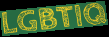
LGBTIQ